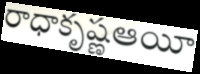
రాధాకృష్ణఆయీ